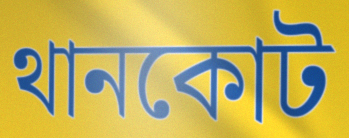
থানকোট